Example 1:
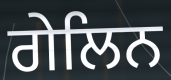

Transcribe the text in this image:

ਗੇਲਿਨ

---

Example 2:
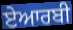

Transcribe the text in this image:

ਏਆਰਬੀ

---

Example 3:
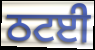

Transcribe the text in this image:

ਠਟਈ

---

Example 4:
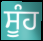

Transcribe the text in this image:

ਸੂੰਹ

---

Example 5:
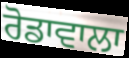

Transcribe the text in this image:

ਰੋਡਾਵਾਲਾ